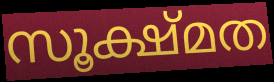
സൂക്ഷ്മത